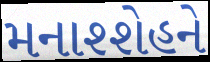
મનાશ્શેહને